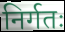
निर्गतः